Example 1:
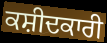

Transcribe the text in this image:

ਕਸ਼ੀਦਕਾਰੀ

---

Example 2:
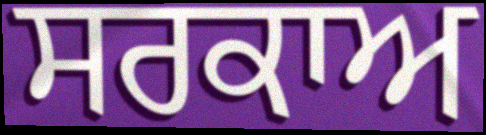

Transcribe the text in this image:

ਸਰਕਾਅ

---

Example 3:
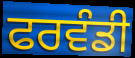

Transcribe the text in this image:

ਫਰਵੰਡੀ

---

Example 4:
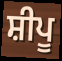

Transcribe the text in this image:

ਸ਼ੀਪੂ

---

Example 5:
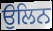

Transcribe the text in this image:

ਉਲਿਨ